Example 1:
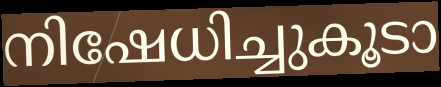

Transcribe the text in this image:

നിഷേധിച്ചുകൂടാ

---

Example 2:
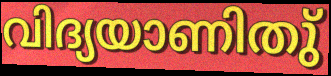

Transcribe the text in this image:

വിദ്യയാണിതു്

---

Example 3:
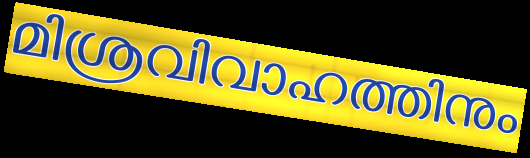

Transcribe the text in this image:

മിശ്രവിവാഹത്തിനും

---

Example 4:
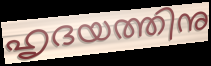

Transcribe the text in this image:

ഹൃദയത്തിനു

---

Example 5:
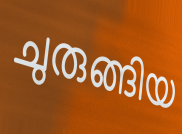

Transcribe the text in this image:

ചുരുങ്ങിയ